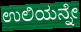
ಉಲಿಯನ್ನೇ